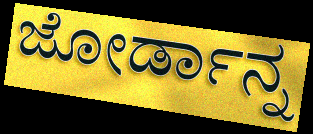
ಜೋರ್ಡಾನ್ನ